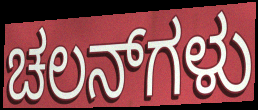
ಚಲನ್‌ಗಳು